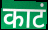
काटं